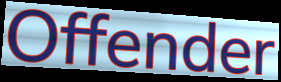
Offender